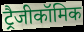
ट्रैजीकॉमिक